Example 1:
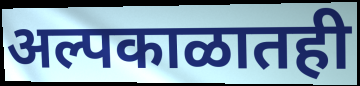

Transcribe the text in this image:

अल्पकाळातही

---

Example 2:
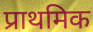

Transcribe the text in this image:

प्राथमिक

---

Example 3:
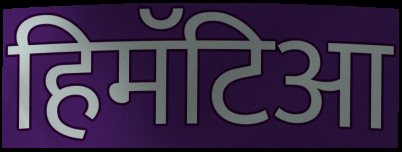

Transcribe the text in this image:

हिमॅटिआ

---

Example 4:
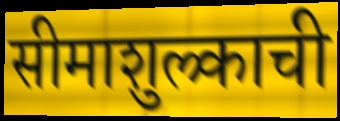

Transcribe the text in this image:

सीमाशुल्काची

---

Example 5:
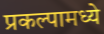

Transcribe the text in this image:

प्रकल्पामध्ये